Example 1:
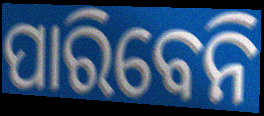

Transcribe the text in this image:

ପାରିବେନି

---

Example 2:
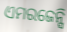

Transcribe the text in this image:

ଏମରଜେନ୍ସି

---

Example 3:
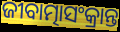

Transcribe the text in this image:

ଜୀବାତ୍ମାସଂକ୍ରାନ୍ତ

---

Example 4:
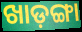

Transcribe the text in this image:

ଖାଡ଼ଙ୍ଗା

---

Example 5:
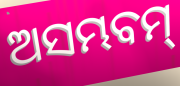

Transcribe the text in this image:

ଅସମ୍ଭବମ୍